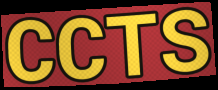
CCTS